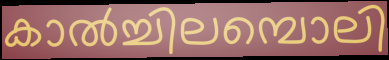
കാൽച്ചിലമ്പൊലി